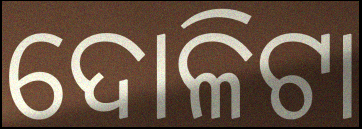
ଦୋଳିଟା